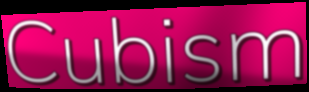
Cubism